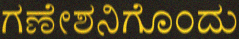
ಗಣೇಶನಿಗೊಂದು